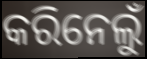
କରିନେଲୁଁ